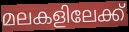
മലകളിലേക്ക്